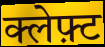
क्लेफ़्ट